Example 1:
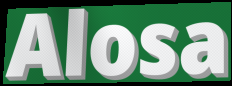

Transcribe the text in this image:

Alosa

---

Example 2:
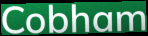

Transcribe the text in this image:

Cobham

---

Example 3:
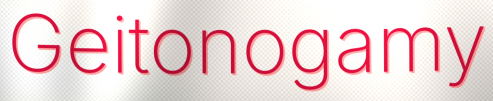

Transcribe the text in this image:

Geitonogamy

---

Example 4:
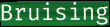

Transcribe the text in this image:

Bruising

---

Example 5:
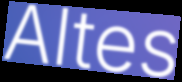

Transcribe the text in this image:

Altes